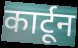
कार्टून